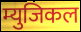
म्युजिकल